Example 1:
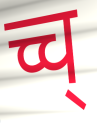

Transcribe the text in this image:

च्च्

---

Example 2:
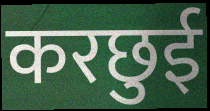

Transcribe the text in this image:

करछुई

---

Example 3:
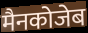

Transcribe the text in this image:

मैनकोजेब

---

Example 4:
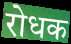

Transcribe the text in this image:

रोधक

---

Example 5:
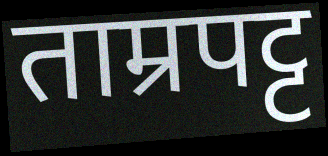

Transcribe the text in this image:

ताम्रपट्ट